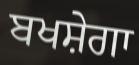
ਬਖਸ਼ੇਗਾ